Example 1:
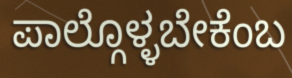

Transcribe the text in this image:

ಪಾಲ್ಗೊಳ್ಳಬೇಕೆಂಬ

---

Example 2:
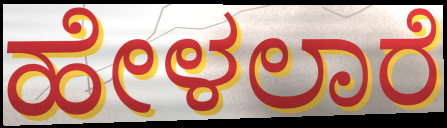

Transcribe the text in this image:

ಹೇಳಲಾರೆ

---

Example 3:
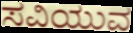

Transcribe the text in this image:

ಸವಿಯುವ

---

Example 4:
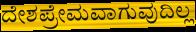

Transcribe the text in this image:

ದೇಶಪ್ರೇಮವಾಗುವುದಿಲ್ಲ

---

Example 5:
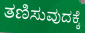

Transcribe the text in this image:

ತಣಿಸುವುದಕ್ಕೆ